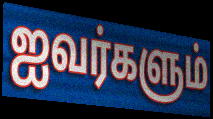
ஐவர்களும்